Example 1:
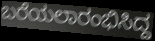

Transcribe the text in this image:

ಬರೆಯಲಾರಂಭಿಸಿದ್ದ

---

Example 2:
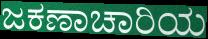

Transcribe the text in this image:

ಜಕಣಾಚಾರಿಯ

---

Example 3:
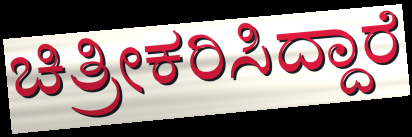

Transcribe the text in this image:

ಚಿತ್ರೀಕರಿಸಿದ್ದಾರೆ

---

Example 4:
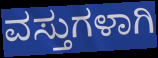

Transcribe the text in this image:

ವಸ್ತುಗಳಾಗಿ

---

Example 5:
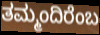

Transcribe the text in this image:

ತಮ್ಮಂದಿರೆಂಬ